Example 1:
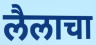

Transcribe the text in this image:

लैलाचा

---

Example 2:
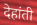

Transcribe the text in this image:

देहांती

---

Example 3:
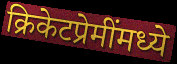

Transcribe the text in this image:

क्रिकेटप्रेमींमध्ये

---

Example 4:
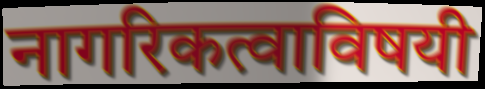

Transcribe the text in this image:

नागरिकत्वाविषयी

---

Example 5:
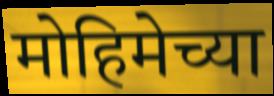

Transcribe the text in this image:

मोहिमेच्या